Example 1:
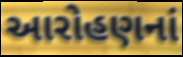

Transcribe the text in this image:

આરોહણનાં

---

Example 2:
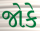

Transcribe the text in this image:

જોકે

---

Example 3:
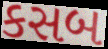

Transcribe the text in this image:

કસબ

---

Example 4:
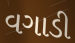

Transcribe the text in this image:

વગાડી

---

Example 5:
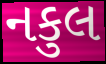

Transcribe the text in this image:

નકુલ